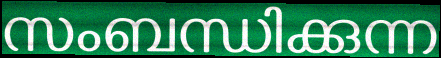
സംബന്ധിക്കുന്ന